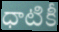
ధాటికీ